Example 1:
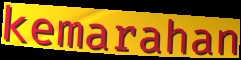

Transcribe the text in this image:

kemarahan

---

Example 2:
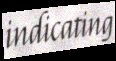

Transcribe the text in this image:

indicating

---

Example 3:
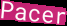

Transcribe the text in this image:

Pacer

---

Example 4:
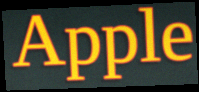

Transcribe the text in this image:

Apple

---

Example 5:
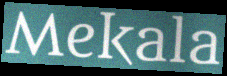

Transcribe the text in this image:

Mekala